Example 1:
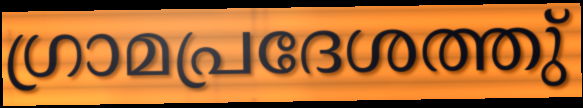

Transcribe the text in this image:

ഗ്രാമപ്രദേശത്തു്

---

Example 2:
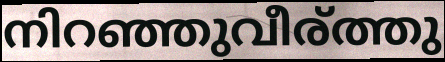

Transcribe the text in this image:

നിറഞ്ഞുവീര്ത്തു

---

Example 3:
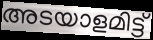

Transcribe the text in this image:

അടയാളമിട്ട്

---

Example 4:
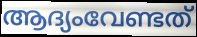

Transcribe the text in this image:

ആദ്യംവേണ്ടത്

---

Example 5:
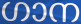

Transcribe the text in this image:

ഗാന